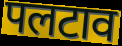
पलटाव